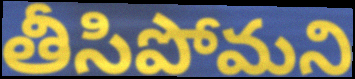
తీసిపోమని